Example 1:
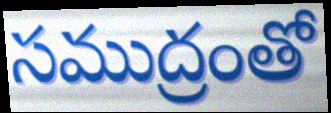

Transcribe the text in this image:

సముద్రంతో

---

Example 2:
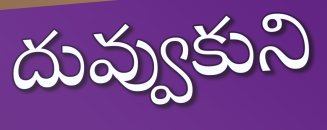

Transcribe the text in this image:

దువ్వుకుని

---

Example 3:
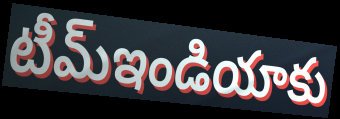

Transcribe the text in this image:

టీమ్ఇండియాకు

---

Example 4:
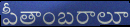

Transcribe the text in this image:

పీతాంబరాలూ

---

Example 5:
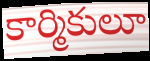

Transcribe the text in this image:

కార్మికులూ